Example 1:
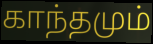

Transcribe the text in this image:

காந்தமும்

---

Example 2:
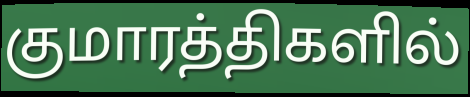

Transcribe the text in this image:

குமாரத்திகளில்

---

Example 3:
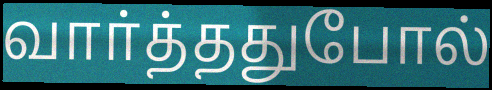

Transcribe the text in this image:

வார்த்ததுபோல்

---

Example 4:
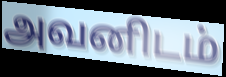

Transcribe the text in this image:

அவனிடம்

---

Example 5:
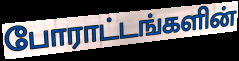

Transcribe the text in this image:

போராட்டங்களின்